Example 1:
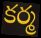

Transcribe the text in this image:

కర్మ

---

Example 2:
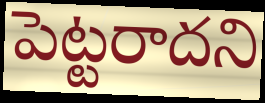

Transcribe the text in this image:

పెట్టరాదని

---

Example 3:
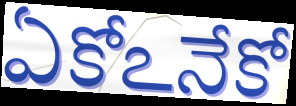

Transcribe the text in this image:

ఏకోఽనేకో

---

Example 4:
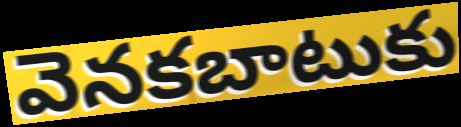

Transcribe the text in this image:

వెనకబాటుకు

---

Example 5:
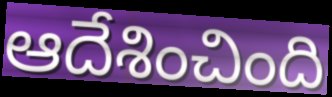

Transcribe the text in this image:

ఆదేశించింది